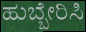
ಹುಬ್ಬೇರಿಸಿ